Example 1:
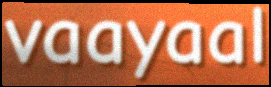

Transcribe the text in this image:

vaayaal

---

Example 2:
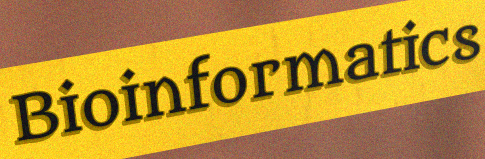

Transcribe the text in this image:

Bioinformatics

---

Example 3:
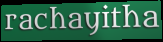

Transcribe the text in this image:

rachayitha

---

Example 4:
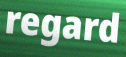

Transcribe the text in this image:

regard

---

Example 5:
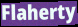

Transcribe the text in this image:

Flaherty